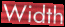
Width